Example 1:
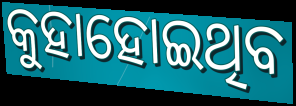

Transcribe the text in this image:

କୁହାହୋଇଥିବ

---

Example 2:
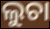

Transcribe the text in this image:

ଲୁଚା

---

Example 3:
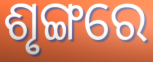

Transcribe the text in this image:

ଶୃଙ୍ଗରେ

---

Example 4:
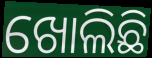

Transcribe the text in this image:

ଖୋଲିଛି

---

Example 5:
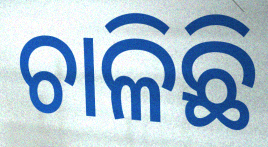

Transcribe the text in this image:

ଚାଳିଛି